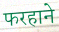
फरहाने